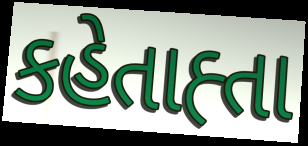
કહેતાહ્તા